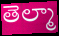
తెల్మా